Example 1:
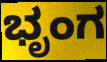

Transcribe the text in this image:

ಭೃಂಗ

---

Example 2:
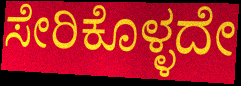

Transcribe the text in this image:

ಸೇರಿಕೊಳ್ಳದೇ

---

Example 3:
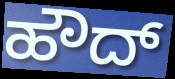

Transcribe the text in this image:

ಹೌದ್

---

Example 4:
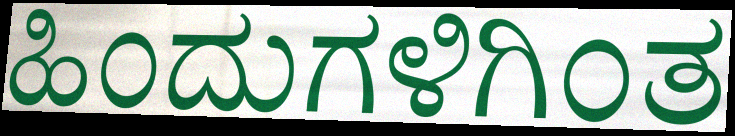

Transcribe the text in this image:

ಹಿಂದುಗಳಿಗಿಂತ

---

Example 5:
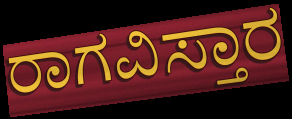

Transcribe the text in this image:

ರಾಗವಿಸ್ತಾರ